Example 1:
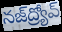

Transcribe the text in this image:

నజ్‌ద్ర్యోవ్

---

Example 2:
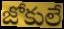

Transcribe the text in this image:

జోకులే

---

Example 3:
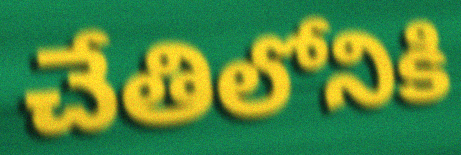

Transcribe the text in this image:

చేతిలోనికి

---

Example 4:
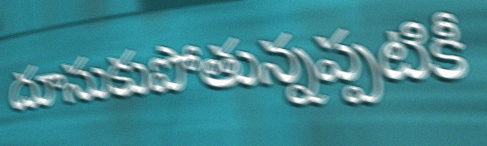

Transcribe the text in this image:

దూసుకుపోతున్నప్పటికీ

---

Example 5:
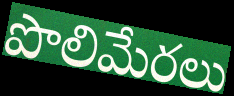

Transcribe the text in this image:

పొలిమేరలు